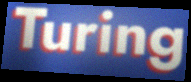
Turing